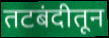
तटबंदीतून